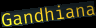
Gandhiana